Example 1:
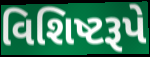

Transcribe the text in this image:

વિશિષ્ટરૂપે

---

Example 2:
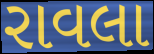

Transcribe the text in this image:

રાવલા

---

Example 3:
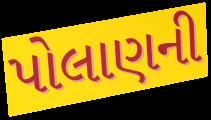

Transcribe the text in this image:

પોલાણની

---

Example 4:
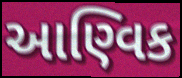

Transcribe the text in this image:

આણ્વિક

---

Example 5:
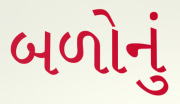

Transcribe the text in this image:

બળોનું